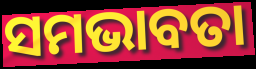
ସମଭାବତା